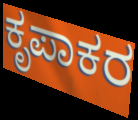
ಕೃಪಾಕರ